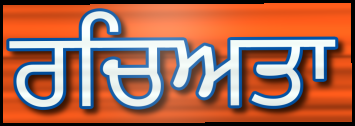
ਰਚਿਅਤਾ